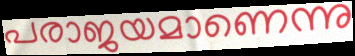
പരാജയമാണെന്നു